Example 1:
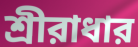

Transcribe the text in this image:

শ্রীরাধার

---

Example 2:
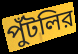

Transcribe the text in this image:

পুঁটলির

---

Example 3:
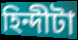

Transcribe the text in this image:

হিন্দীটা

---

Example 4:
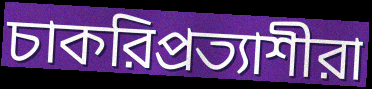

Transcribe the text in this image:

চাকরিপ্রত্যাশীরা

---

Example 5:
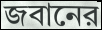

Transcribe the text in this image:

জবানের